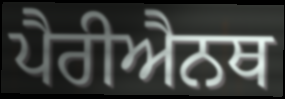
ਪੈਰੀਐਨਥ